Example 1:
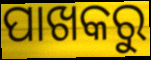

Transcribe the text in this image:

ପାଖକରୁ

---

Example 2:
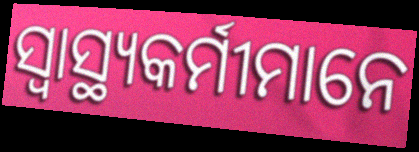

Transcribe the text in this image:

ସ୍ବାସ୍ଥ୍ୟକର୍ମୀମାନେ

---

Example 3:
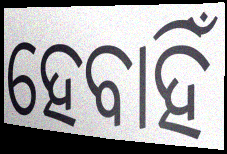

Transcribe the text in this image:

ହେବାହିଁ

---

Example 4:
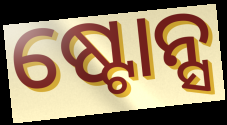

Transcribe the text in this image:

ଷ୍ଟୋନ୍ସ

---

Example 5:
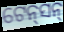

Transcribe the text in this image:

ଟେନ୍‌ସନ୍